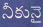
నీకునై